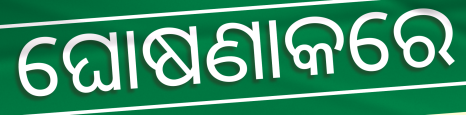
ଘୋଷଣାକରେ